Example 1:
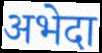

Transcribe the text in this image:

अभेदा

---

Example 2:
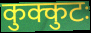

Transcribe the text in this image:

कुक्कुटः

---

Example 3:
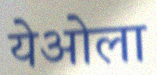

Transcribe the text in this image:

येओला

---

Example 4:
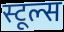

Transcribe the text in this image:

स्टूल्स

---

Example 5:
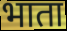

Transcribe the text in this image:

भाता